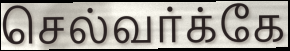
செல்வர்க்கே